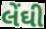
લેંઘી